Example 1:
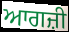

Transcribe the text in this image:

ਆਗਜ਼ੀ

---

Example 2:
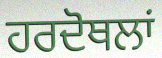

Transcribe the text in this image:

ਹਰਦੋਥਲਾਂ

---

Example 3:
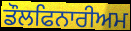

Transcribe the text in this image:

ਡੌਲਫਿਨਾਰੀਅਮ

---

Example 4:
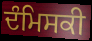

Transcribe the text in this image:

ਦੰਮਿਸਕੀ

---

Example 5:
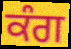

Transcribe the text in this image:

ਕੰਗ